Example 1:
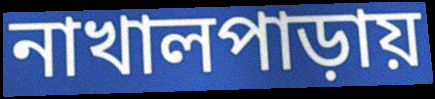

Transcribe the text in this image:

নাখালপাড়ায়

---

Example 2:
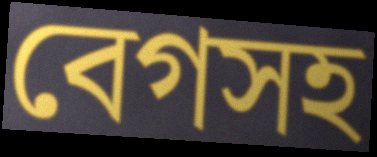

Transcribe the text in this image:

বেগসহ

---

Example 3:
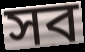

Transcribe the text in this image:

সব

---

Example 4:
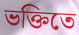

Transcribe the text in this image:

ভক্তিতে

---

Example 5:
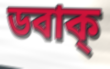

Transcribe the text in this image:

ডবাক্